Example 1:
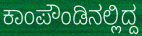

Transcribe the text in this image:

ಕಾಂಪೌಂಡಿನಲ್ಲಿದ್ದ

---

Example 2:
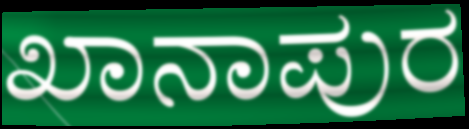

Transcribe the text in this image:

ಖಾನಾಪುರ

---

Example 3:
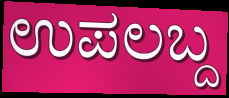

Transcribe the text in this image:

ಉಪಲಬ್ದ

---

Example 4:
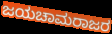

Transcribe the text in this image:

ಜಯಚಾಮರಾಜರ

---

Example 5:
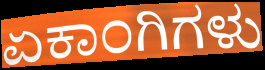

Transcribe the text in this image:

ಏಕಾಂಗಿಗಳು